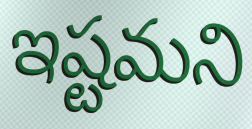
ఇష్టమని